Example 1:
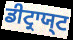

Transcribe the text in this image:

ਡੀਟ੍ਰਾਯ੍ਟ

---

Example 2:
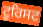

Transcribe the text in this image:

ਟੂਰਿਸਟ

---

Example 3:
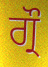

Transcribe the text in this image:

ਗ੍ਰੌ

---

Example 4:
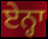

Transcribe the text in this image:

ਏਨ੍ਹ੍ਹਾ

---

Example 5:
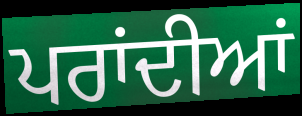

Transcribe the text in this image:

ਪਰਾਂਦੀਆਂ